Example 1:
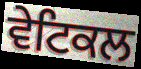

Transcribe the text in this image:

ਵੇਟਿਕਲ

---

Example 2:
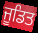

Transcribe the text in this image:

ਜੂਡਿਤ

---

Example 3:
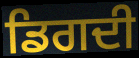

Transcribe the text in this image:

ਡਿਗਦੀ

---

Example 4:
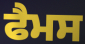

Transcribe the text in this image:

ਫੈਮਸ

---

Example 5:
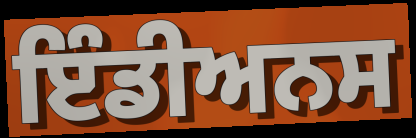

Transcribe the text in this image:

ਇੰਡੀਅਨਸ